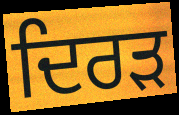
ਦਿਰੜ